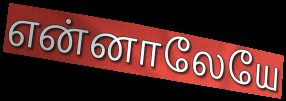
என்னாலேயே